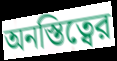
অনস্তিত্বের